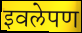
इवलेपण